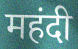
महंदी